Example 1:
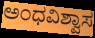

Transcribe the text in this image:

ಅಂಧವಿಶ್ವಾಸ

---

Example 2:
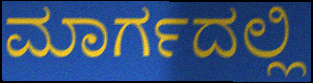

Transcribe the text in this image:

ಮಾರ್ಗದಲ್ಲಿ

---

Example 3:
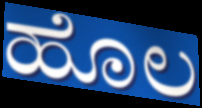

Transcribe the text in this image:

ಹೊಲ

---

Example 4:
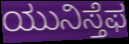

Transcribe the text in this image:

ಯುನಿಸ್ತೆಫ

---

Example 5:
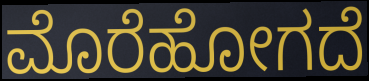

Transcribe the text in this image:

ಮೊರೆಹೋಗದೆ